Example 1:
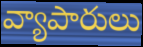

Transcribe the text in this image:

వ్యాపారులు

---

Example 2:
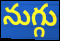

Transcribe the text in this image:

నుగ్గు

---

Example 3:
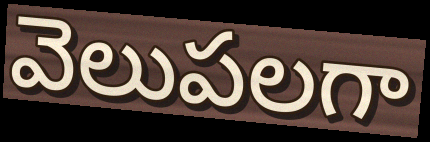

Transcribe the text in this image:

వెలుపలగా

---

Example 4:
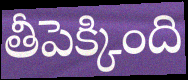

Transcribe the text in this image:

తీపెక్కింది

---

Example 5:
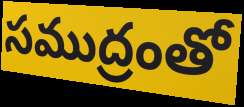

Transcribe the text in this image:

సముద్రంతో